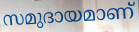
സമുദായമാണ്